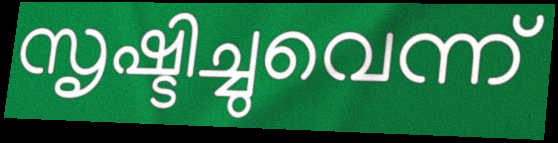
സൃഷ്ടിച്ചുവെന്ന്